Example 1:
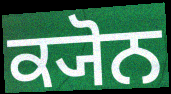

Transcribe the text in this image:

ਕ੍ਯੋਨ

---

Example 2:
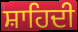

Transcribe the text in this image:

ਸ਼ਾਹਿਦੀ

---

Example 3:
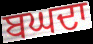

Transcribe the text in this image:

ਬਘਦਾ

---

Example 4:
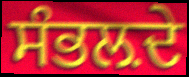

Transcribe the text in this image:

ਸੰਭਲ਼ਦੇ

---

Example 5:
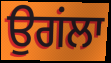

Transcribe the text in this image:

ਉਗਂਲਾ